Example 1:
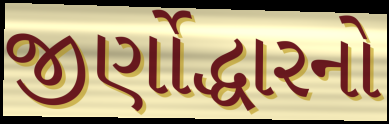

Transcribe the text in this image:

જીર્ણોદ્ધારનો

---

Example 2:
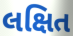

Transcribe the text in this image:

લક્ષિત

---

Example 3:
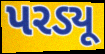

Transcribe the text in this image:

પરડ્યૂ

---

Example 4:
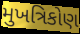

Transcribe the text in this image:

મુખત્રિકોણ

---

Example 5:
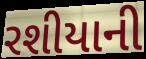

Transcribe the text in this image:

રશીયાની